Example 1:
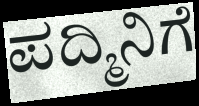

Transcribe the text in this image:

ಪದ್ಮಿನಿಗೆ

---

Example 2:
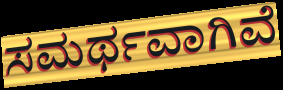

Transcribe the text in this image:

ಸಮರ್ಥವಾಗಿವೆ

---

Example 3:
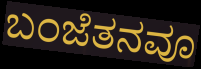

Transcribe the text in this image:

ಬಂಜೆತನವೂ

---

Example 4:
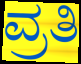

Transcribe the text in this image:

ವ್ರತಿ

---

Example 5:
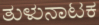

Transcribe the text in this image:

ತುಳುನಾಟಕ